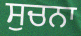
ਸੁਚਨਾ